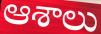
ఆశాలు